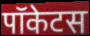
पॉकेटस